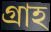
গ্রাহ